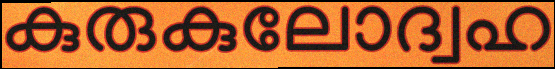
കുരുകുലോദ്വഹ